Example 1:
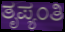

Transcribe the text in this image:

ತೃಪ್ಯಂತಿ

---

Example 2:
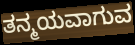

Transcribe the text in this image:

ತನ್ಮಯವಾಗುವ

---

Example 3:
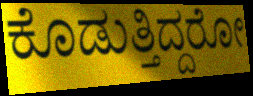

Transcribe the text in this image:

ಕೊಡುತ್ತಿದ್ದರೋ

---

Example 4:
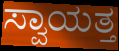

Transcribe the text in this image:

ಸ್ವಾಯತ್ತ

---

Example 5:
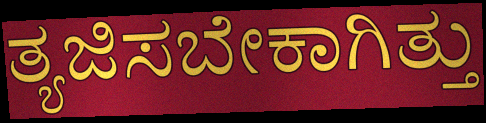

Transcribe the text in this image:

ತ್ಯಜಿಸಬೇಕಾಗಿತ್ತು